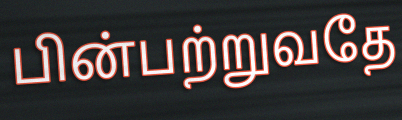
பின்பற்றுவதே